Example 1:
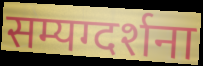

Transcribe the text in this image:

सम्यग्दर्शना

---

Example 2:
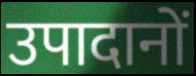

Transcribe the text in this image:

उपादानों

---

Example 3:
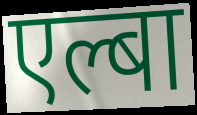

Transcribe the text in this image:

एल्बा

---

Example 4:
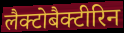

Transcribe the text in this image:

लैक्टोबैक्टीरिन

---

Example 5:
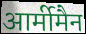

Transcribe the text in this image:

आर्मीमैन